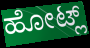
ಹೋಟ್ಲ್